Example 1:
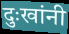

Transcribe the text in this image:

दुःखांनी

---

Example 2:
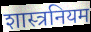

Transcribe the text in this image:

शास्त्रनियम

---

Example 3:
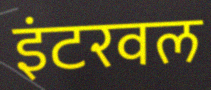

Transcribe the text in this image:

इंटरवल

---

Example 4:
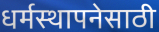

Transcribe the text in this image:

धर्मस्थापनेसाठी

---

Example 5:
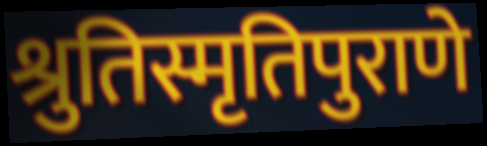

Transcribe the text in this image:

श्रुतिस्मृतिपुराणे